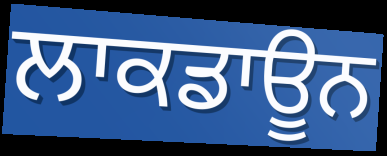
ਲਾਕਡਾਊਨ